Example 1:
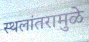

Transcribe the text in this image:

स्थलांतरामुळे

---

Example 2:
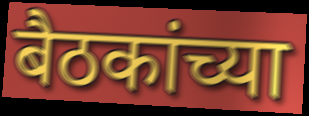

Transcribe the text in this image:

बैठकांच्या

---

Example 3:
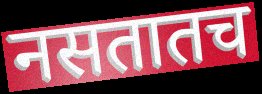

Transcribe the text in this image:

नसतातच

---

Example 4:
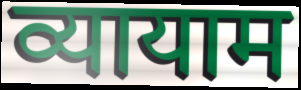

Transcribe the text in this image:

व्यायाम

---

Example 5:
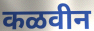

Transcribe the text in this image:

कळवीन